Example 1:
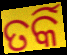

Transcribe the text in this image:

ତର୍କି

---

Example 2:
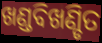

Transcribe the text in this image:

ଖଣ୍ଡବିଖଣ୍ଡିତ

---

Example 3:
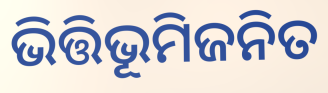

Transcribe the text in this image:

ଭିତ୍ତିଭୂମିଜନିତ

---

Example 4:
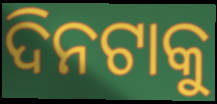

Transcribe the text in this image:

ଦିନଟାକୁ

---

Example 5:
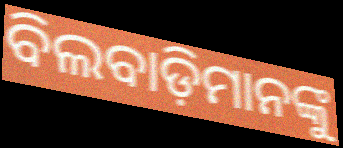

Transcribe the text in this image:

ବିଲବାଡ଼ିମାନଙ୍କୁ